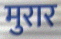
मुरार